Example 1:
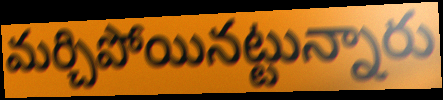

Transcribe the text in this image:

మర్చిపోయినట్టున్నారు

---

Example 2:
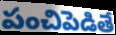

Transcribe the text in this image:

పంచిపెడితే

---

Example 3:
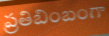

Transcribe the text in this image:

ప్రతిబింబంగా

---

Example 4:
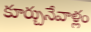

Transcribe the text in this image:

కూర్చునేవాళ్లం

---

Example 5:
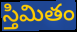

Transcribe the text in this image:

స్తిమితం